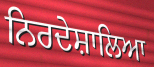
ਨਿਰਦੇਸ਼ਾਲਿਆ